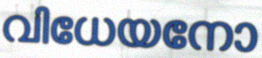
വിധേയനോ